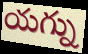
యగ్ను